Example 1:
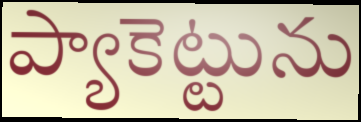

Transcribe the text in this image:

ప్యాకెట్టును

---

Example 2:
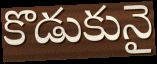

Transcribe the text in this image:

కొడుకునై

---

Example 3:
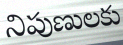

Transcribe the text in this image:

నిపుణులకు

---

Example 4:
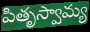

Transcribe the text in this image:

పితృస్వామ్య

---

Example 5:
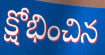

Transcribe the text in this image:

క్షోభించిన